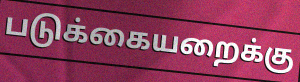
படுக்கையறைக்கு